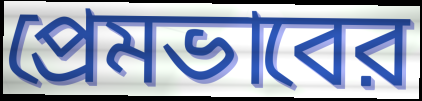
প্রেমভাবের